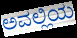
ಅವಲ್ಲಿಯ